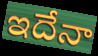
ఇదేనా